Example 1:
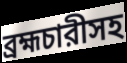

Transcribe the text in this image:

ব্রহ্মচারীসহ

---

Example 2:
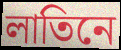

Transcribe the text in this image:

লাতিনে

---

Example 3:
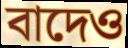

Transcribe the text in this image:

বাদেও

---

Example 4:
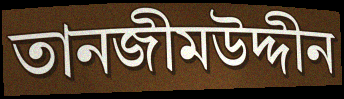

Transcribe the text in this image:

তানজীমউদ্দীন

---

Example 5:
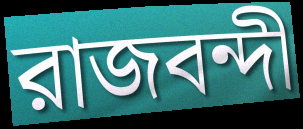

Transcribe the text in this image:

রাজবন্দী